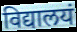
विद्यालयं